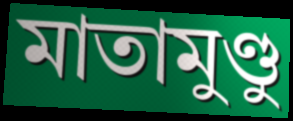
মাতামুণ্ডু